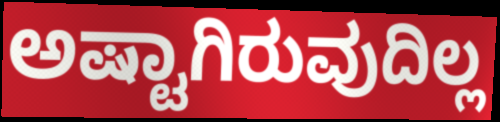
ಅಷ್ಟಾಗಿರುವುದಿಲ್ಲ